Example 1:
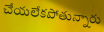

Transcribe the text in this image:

చేయలేకపోతున్నారు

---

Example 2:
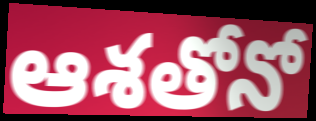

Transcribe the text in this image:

ఆశతోనో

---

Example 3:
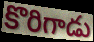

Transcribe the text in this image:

కొరిగాడు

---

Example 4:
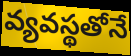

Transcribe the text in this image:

వ్యవస్థతోనే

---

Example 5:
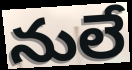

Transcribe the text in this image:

నులే